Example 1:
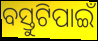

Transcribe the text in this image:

ବସ୍ତୁଟିପାଇଁ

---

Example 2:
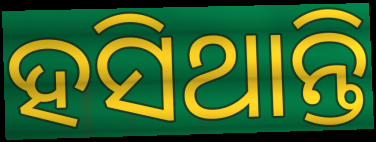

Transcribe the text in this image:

ହସିଥାନ୍ତି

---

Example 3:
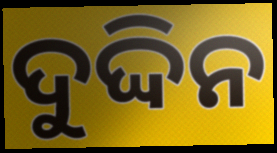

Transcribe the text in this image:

ଦୁଦ୍ଦିନ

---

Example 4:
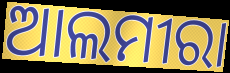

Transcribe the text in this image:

ଆଲମୀରା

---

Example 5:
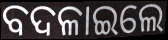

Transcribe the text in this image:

ବଦଳାଇଲେ